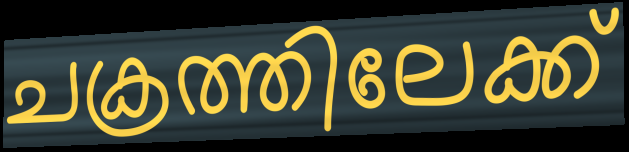
ചക്രത്തിലേക്ക്